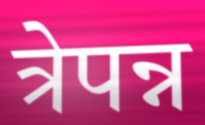
त्रेपन्न